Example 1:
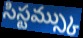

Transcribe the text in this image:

సిస్టమ్స్కు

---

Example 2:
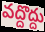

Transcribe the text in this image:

వద్దొద్దు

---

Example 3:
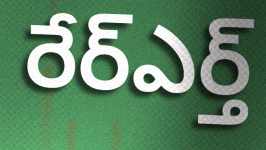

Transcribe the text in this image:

రేర్ఎర్త్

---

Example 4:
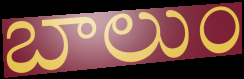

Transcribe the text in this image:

బాలుం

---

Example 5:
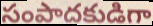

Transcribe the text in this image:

సంపాదకుడిగా